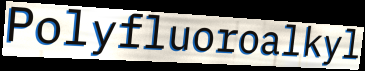
Polyfluoroalkyl